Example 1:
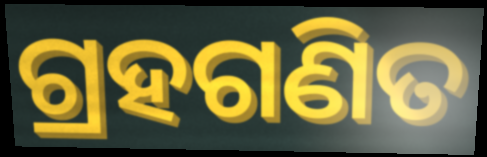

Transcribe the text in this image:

ଗ୍ରହଗଣିତ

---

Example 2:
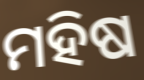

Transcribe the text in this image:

ମହିଷ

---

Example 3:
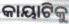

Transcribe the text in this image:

କାୟାଟିକୁ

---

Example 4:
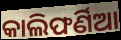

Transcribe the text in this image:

କାଲିଫର୍ଣିଆ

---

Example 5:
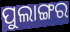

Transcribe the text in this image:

ପୁଲାଙ୍ଗର